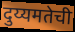
दुय्यमतेची